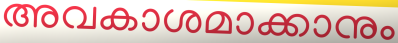
അവകാശമാക്കാനും